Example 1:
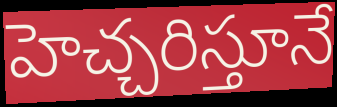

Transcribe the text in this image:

హెచ్చరిస్తూనే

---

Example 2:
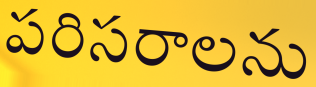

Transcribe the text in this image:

పరిసరాలను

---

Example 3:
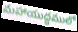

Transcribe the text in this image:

మహాయుద్ధములో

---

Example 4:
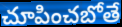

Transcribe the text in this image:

చూపించబోతే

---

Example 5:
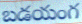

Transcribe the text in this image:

బడయంగ